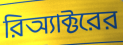
রিঅ্যাক্টরের